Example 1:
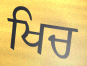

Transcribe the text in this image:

ਖਿਚ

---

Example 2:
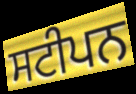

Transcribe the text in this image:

ਸਟੀਪਨ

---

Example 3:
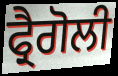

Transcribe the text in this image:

ਫ੍ਰੈਗੋਲੀ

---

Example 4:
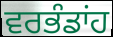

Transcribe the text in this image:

ਵਰਭੰਡਾਂਹ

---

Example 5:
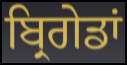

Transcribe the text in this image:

ਬ੍ਰਿਗੇਡਾਂ